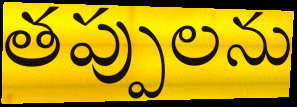
తప్పులను